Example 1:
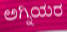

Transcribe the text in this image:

ಅಗ್ನಿಯರ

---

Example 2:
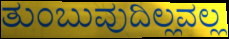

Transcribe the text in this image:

ತುಂಬುವುದಿಲ್ಲವಲ್ಲ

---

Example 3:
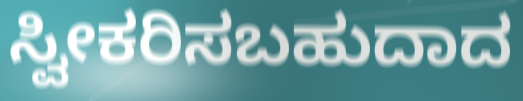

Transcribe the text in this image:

ಸ್ವೀಕರಿಸಬಹುದಾದ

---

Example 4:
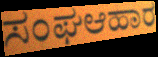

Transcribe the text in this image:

ಸಂಘಆಹಾರ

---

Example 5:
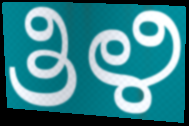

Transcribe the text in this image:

ತಿಳಿ